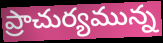
ప్రాచుర్యమున్న